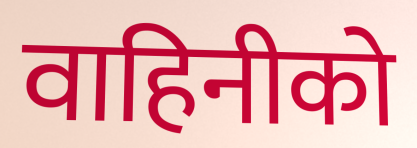
वाहिनीको